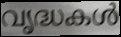
വൃദ്ധകൾ